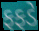
ફફડે